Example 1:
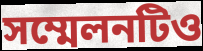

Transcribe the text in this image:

সম্মেলনটিও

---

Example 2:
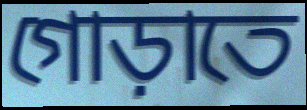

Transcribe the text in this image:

গোড়াতে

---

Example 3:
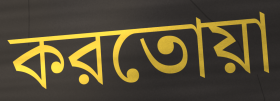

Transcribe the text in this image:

করতোয়া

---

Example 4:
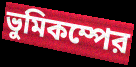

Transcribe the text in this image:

ভুমিকম্পের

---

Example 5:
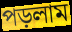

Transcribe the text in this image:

পড়লাম